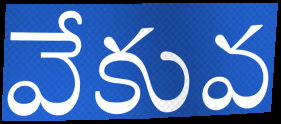
వేకువ